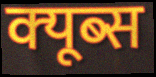
क्यूब्स